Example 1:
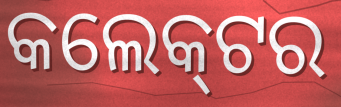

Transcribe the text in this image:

କଲେକ୍‌ଟର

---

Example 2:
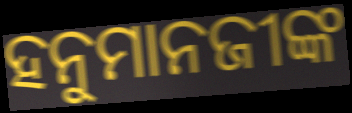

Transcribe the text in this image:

ହନୁମାନଜୀଙ୍କ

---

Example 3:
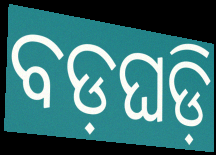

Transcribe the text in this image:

ବଡ଼ଘଡ଼ି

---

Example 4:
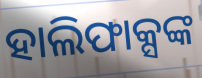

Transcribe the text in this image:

ହାଲିଫାକ୍ସଙ୍କ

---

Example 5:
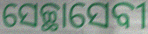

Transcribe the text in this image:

ସେଚ୍ଛାସେବୀ